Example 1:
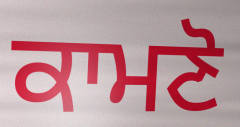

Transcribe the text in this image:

ਕਾਮਣੋ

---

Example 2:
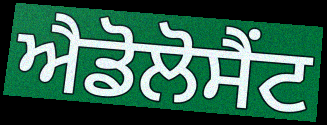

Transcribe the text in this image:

ਐਡੋਲੋਸੈਂਟ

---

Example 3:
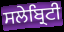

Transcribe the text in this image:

ਸਲੇਬ੍ਰਿਟੀ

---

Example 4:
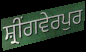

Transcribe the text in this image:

ਸ਼੍ਰੀਂਗਵੇਰਪੁਰ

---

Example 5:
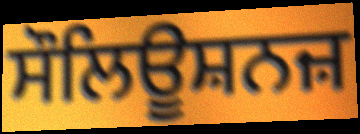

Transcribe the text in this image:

ਸੌਲਿਊਸ਼ਨਜ਼